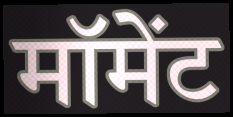
मॉमेंट